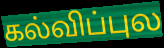
கல்விப்புல